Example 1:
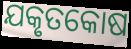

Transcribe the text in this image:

ଯକୃତକୋଷ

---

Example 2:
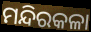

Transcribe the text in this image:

ମନ୍ଦିରକଳା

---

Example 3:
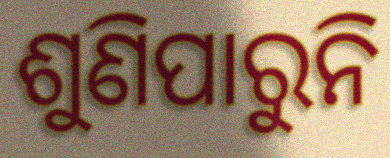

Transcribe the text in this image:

ଶୁଣିପାରୁନି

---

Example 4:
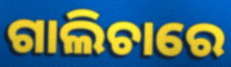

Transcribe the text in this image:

ଗାଲିଚାରେ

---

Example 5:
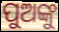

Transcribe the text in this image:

ପୁଅଙ୍କୁ